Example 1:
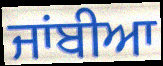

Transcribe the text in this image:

ਜਾਂਬੀਆ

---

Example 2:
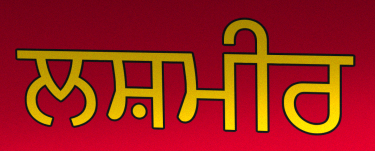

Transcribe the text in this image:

ਲਸ਼ਮੀਰ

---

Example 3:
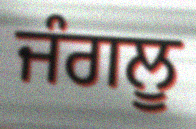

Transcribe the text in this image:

ਜੰਗਲੂ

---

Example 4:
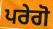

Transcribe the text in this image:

ਪਰੇਗੋ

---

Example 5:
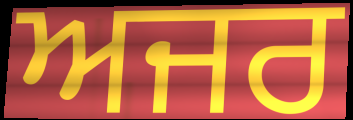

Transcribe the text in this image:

ਅਜਰ